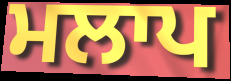
ਮਲਾਪ